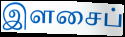
இளசைப்